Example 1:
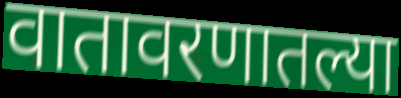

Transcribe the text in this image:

वातावरणातल्या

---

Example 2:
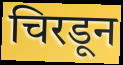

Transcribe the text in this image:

चिरडून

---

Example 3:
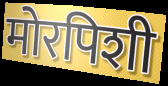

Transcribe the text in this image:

मोरपिशी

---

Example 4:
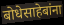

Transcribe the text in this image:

बोधेसाहेबांना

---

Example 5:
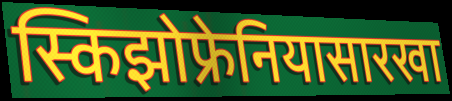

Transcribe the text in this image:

स्किझोफ्रेनियासारखा